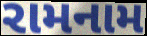
રામનામ